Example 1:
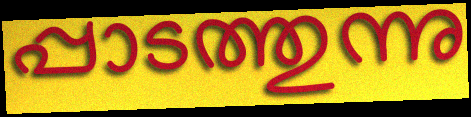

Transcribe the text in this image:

പ്പാടത്തുന്നു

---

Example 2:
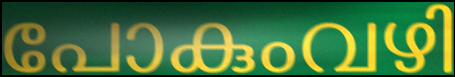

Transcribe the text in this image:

പോകുംവഴി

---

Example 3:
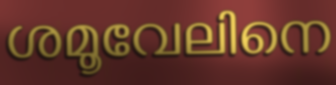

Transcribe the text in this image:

ശമൂവേലിനെ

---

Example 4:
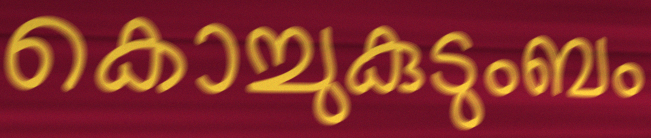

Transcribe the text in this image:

കൊച്ചുകുടുംബം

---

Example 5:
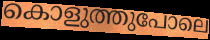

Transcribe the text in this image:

കൊളുത്തുപോലെ